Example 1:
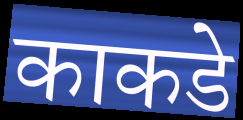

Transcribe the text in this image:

काकडे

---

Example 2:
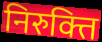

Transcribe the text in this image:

निरुक्ति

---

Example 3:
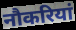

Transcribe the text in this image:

नौकरियां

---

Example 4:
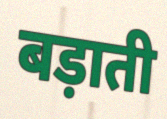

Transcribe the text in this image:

बड़ाती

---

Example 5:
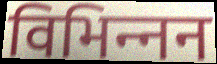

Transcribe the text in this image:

विभिन्नन